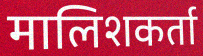
मालिशकर्ता